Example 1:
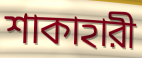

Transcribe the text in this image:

শাকাহারী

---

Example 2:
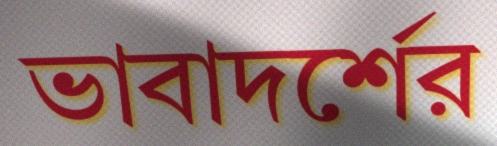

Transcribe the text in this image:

ভাবাদর্শের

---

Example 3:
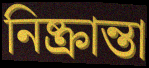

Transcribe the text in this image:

নিষ্ক্রান্তা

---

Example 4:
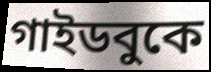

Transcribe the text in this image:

গাইডবুকে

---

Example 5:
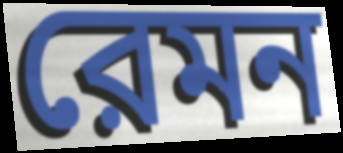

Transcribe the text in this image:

রেমন